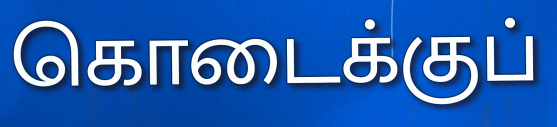
கொடைக்குப்